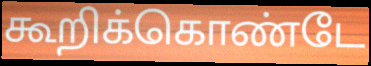
கூறிக்கொண்டே